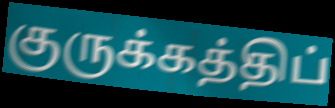
குருக்கத்திப்